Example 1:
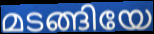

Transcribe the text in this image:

മടങ്ങിയേ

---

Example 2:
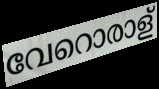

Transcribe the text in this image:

വേറൊരാള്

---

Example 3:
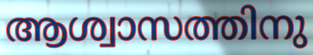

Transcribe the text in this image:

ആശ്വാസത്തിനു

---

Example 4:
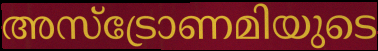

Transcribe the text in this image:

അസ്ട്രോണമിയുടെ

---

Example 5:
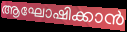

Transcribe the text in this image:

ആഘോഷിക്കാൻ